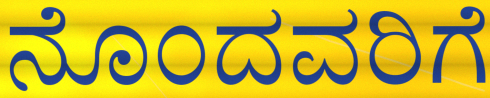
ನೊಂದವರಿಗೆ